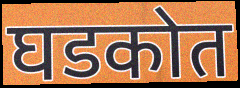
घडकोत